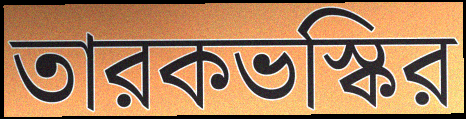
তারকভস্কির